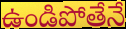
ఉండిపోతేనే